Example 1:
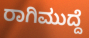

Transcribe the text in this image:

ರಾಗಿಮುದ್ದೆ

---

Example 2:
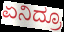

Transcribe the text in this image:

ಏನಿದ್ರೂ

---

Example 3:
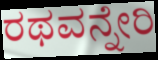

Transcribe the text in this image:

ರಥವನ್ನೇರಿ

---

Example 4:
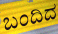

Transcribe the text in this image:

ಬಂದಿದ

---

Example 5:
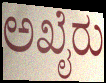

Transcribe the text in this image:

ಅಖೈರು